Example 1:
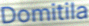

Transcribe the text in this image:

Domitila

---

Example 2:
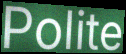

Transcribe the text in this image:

Polite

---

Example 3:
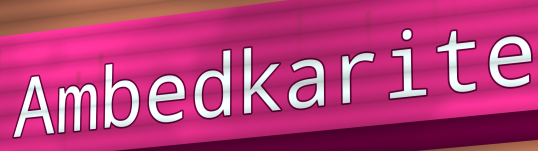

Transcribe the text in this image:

Ambedkarite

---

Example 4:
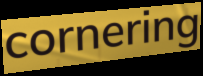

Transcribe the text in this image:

cornering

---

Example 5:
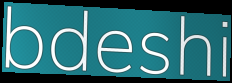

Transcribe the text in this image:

bdeshi